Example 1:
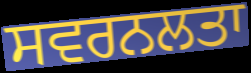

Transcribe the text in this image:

ਸਵਰਨਲਤਾ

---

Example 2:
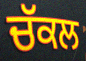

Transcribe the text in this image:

ਚੱਕਲ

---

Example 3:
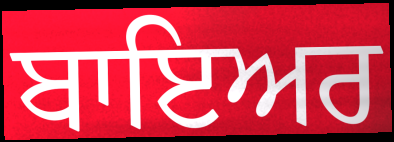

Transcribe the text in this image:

ਬਾਇਅਰ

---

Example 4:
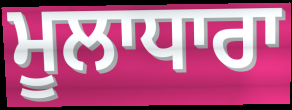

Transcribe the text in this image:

ਮੂਲਾਧਾਰਾ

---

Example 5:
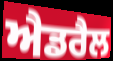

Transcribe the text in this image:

ਐਡਰੈਲ